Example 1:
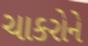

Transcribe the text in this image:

ચાકરોને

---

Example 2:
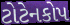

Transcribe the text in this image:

ટોટેનકોપ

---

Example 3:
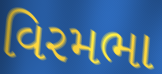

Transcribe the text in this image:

વિરમભા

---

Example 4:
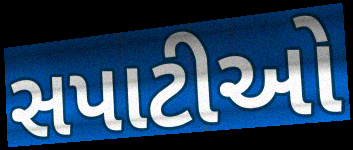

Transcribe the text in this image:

સપાટીઓ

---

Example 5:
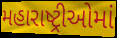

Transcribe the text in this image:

મહારાષ્ટ્રીઓમાં